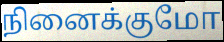
நினைக்குமோ